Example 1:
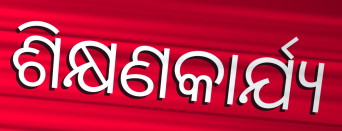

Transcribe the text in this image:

ଶିକ୍ଷଣକାର୍ଯ୍ୟ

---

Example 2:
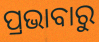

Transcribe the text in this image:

ପ୍ରଭାବାରୁ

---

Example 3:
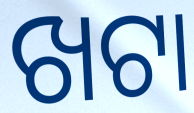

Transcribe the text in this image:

ଖଟା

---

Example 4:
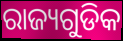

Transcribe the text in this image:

ରାଜ୍ୟଗୁଡିକ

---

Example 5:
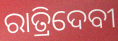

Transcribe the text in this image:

ରାତ୍ରିଦେବୀ